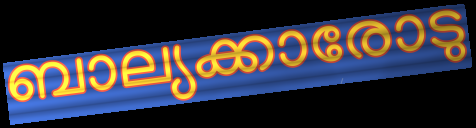
ബാല്യക്കാരോടു